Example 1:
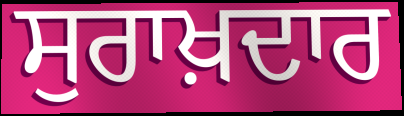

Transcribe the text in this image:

ਸੁਰਾਖ਼ਦਾਰ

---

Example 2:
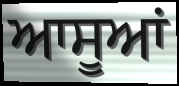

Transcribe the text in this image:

ਆਸੂਆਂ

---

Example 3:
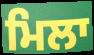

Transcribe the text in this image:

ਮਿਲਾ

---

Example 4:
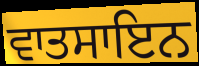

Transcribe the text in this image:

ਵਾਤਸਾਇਨ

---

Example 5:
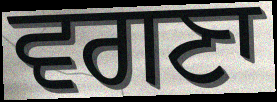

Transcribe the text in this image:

ਵਗਣਾ